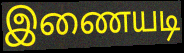
இணையடி